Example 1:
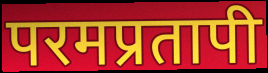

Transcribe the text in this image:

परमप्रतापी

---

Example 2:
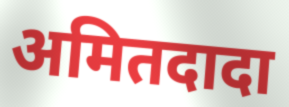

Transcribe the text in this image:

अमितदादा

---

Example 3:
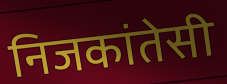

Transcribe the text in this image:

निजकांतेसी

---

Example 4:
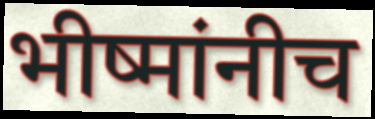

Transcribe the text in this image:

भीष्मांनीच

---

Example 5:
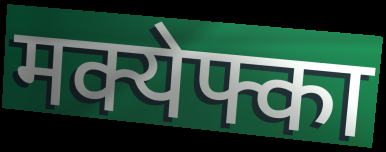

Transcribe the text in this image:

मक्येफ्का